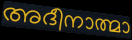
അദീനാത്മാ